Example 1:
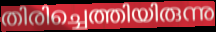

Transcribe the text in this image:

തിരിച്ചെത്തിയിരുന്നു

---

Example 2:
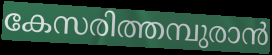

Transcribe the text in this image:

കേസരിത്തമ്പുരാൻ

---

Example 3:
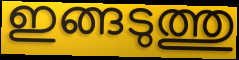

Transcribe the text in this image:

ഇങ്ങടുത്തു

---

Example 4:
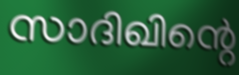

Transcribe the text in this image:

സാദിഖിന്റെ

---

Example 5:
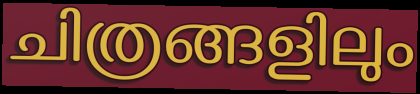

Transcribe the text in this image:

ചിത്രങ്ങളിലും